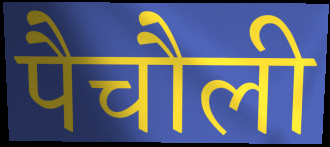
पैचौली